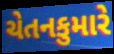
ચેતનકુમારે